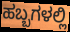
ಹಬ್ಬಗಳಲ್ಲಿ